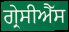
ਗ੍ਰੇਸੀਐੱਸ